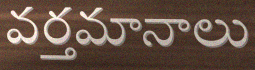
వర్తమానాలు